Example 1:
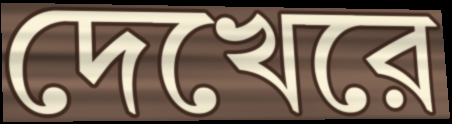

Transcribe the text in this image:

দেখেরে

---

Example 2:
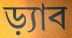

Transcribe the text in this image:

ড়্যাব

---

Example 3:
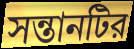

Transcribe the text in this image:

সন্তানটির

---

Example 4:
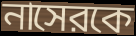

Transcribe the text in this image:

নাসেরকে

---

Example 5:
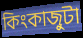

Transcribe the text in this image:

কিংকাজুটা